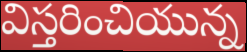
విస్తరించియున్న